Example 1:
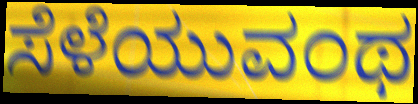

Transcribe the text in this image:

ಸೆಳೆಯುವಂಥ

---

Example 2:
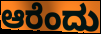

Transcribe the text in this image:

ಆರೆಂದು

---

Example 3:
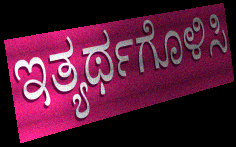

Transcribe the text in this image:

ಇತ್ಯರ್ಥಗೊಳಿಸಿ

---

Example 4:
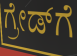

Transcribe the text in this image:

ಗ್ರೇಡ್‌ಗೆ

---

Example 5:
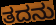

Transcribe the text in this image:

ತದನು